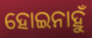
ହୋଇନାହୁଁ